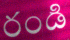
రండి